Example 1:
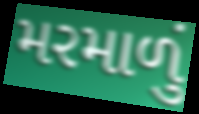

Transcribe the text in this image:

મરમાળું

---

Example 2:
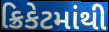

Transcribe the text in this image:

ક્રિકેટમાંથી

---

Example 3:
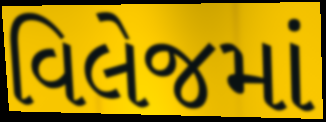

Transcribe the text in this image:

વિલેજમાં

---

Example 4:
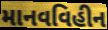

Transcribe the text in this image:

માનવવિહીન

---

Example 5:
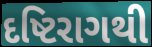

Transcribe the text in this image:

દષ્ટિરાગથી